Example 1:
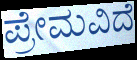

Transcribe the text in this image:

ಪ್ರೇಮವಿದೆ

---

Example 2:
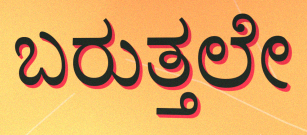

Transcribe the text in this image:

ಬರುತ್ತಲೇ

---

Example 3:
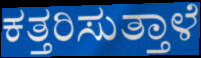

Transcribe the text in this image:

ಕತ್ತರಿಸುತ್ತಾಳೆ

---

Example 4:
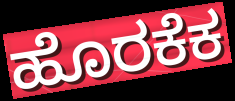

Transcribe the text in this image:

ಹೊರಕೆಕ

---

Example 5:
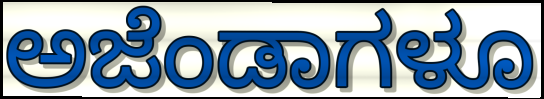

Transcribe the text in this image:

ಅಜೆಂಡಾಗಳೂ